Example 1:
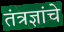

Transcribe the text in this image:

तंत्रज्ञांचे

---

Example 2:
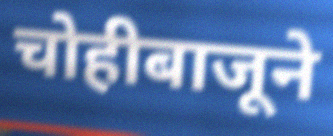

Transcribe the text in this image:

चोहीबाजूने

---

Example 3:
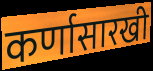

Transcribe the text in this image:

कर्णासारखी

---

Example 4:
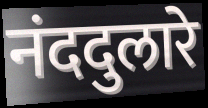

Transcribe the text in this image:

नंददुलारे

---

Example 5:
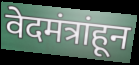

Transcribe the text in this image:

वेदमंत्रांहून